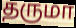
தருமா